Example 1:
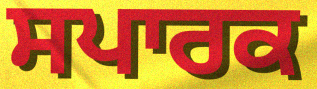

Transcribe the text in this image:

ਸਪਾਰਕ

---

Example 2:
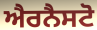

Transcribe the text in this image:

ਐਰਨੈਸਟੋ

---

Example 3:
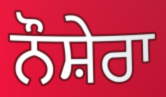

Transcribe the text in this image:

ਨੌਸ਼ੇਰਾ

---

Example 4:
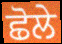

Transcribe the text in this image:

ਛੋਲੇ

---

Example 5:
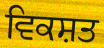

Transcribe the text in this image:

ਵਿਕਸ਼ਤ